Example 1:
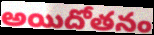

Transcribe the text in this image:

అయిదోతనం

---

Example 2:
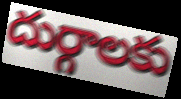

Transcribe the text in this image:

దుర్గాలకు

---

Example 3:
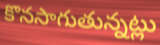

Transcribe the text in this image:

కొనసాగుతున్నట్లు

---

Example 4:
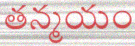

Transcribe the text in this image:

తన్మయం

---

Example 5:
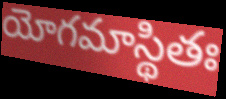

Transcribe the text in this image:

యోగమాస్థితః